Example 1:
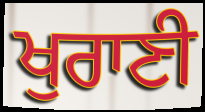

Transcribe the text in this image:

ਖੁਰਾਣੀ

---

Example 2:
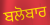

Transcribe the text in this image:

ਬਲੋਬਾਰ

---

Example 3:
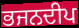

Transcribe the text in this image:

ਭਜਨਦੀਪ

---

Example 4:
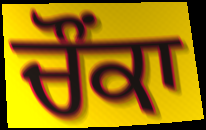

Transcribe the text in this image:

ਚੌੰਕਾ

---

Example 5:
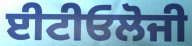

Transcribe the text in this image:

ਈਟੀਓਲੋਜੀ